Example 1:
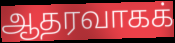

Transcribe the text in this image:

ஆதரவாகக்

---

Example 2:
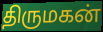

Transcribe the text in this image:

திருமகன்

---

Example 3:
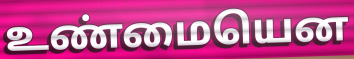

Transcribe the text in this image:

உண்மையென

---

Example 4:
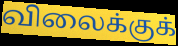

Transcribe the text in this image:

விலைக்குக்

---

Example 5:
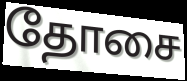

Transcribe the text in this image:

தோசை